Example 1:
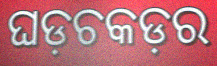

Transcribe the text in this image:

ଘଡ଼ଚକଡ଼ର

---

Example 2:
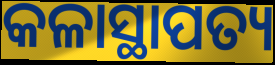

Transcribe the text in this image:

କଳାସ୍ଥାପତ୍ୟ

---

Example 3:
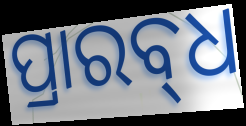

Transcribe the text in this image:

ପ୍ରାରବ୍‍ଧ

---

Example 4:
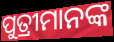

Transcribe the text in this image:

ପୁତ୍ରୀମାନଙ୍କ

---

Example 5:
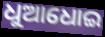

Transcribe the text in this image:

ଧୁଆଧୋଇ